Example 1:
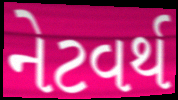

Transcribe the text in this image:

નેટવર્થ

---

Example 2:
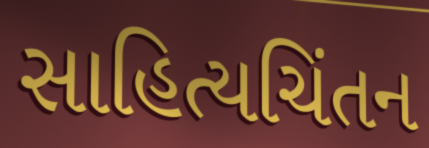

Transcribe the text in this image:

સાહિત્યચિંતન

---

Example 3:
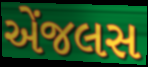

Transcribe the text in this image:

એંજલસ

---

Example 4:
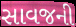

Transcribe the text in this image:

સાવજની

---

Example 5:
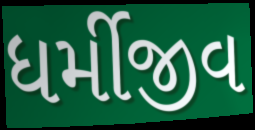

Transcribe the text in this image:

ધર્મીજીવ